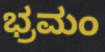
ಭ್ರಮಂ